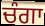
ਚੰਗਾ